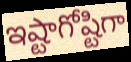
ఇష్టాగోష్టిగా